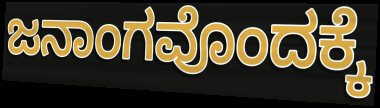
ಜನಾಂಗವೊಂದಕ್ಕೆ